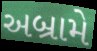
અબ્રામે